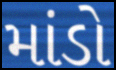
માંડો